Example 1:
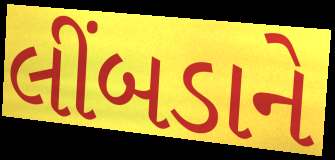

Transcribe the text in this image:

લીંબડાને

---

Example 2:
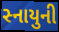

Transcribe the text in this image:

સ્નાયુની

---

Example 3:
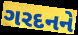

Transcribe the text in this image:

ગરદનને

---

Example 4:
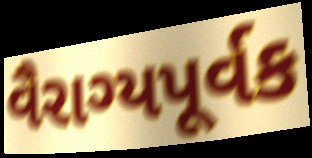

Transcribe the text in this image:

વૈરાગ્યપૂર્વક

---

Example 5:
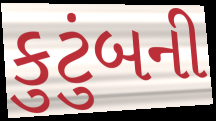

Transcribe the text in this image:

કુટુંબની